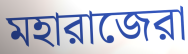
মহারাজেরা